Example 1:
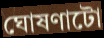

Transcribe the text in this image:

ঘোষণাটো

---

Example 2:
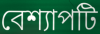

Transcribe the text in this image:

বেশ্যাপটি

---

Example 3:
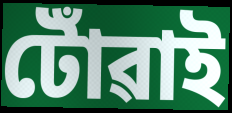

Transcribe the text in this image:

টোঁৱাই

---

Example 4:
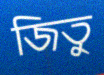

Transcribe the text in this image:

জিতু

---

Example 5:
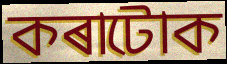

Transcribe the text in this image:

কৰাটোক